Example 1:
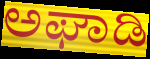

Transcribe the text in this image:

ಅಘಾಡಿ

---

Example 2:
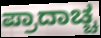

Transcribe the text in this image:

ಪ್ರಾದಾಚ್ಚ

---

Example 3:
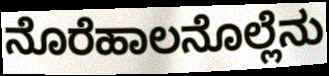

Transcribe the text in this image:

ನೊರೆಹಾಲನೊಲ್ಲೆನು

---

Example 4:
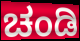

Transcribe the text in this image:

ಚಂಡಿ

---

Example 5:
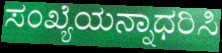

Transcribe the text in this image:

ಸಂಖ್ಯೆಯನ್ನಾಧರಿಸಿ